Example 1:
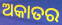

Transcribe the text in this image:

ଅକାତର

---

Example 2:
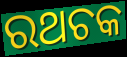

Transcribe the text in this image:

ରଥଚକ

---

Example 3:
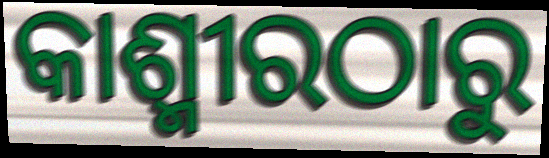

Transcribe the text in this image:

କାଶ୍ମୀରଠାରୁ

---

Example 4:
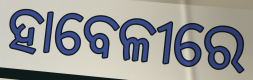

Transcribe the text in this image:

ହାବେଳୀରେ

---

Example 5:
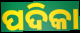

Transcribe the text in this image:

ପଦିକା